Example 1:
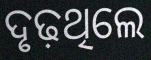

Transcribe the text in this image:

ଦୃଢ଼ଥିଲେ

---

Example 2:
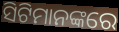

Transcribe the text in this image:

ସିଟିମାନଙ୍କରେ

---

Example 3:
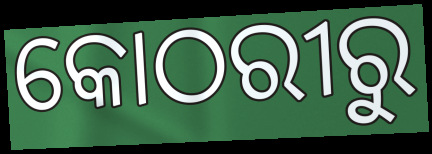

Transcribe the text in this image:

କୋଠରୀରୁ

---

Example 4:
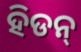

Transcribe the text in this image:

ହିଡନ୍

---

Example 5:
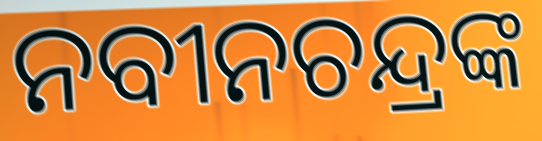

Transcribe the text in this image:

ନବୀନଚନ୍ଦ୍ରଙ୍କ